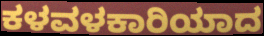
ಕಳವಳಕಾರಿಯಾದ